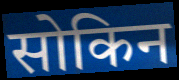
सोकिन